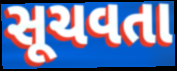
સૂચવતા